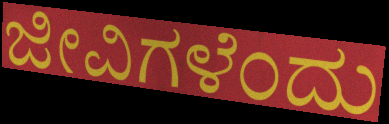
ಜೀವಿಗಳೆಂದು